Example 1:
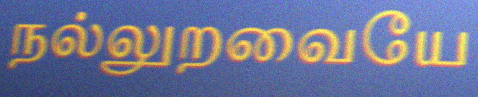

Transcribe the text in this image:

நல்லுறவையே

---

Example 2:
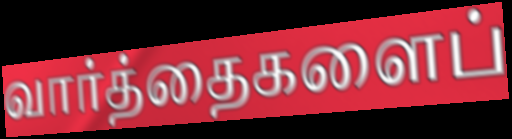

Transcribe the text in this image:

வார்த்தைகளைப்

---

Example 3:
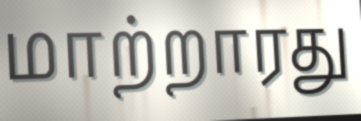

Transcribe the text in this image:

மாற்றாரது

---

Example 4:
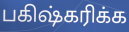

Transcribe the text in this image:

பகிஷ்கரிக்க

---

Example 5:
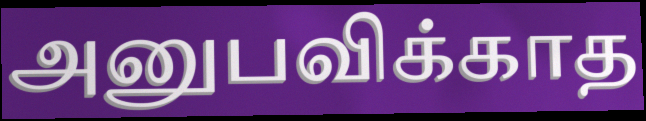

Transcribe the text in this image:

அனுபவிக்காத